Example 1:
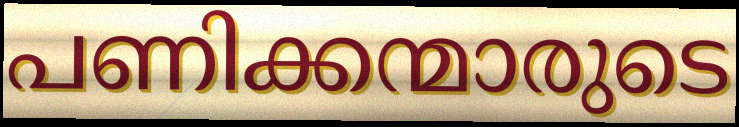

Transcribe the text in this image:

പണിക്കന്മാരുടെ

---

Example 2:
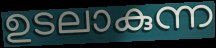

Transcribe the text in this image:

ഉടലാകുന്ന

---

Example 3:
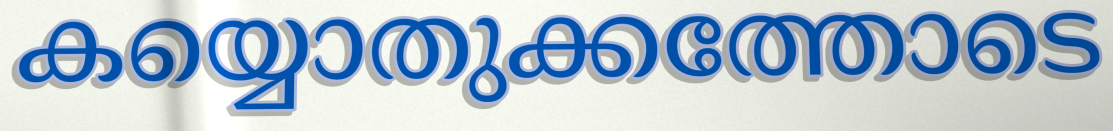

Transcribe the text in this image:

കയ്യൊതുക്കത്തോടെ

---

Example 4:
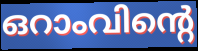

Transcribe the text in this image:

ഒറാംവിന്റെ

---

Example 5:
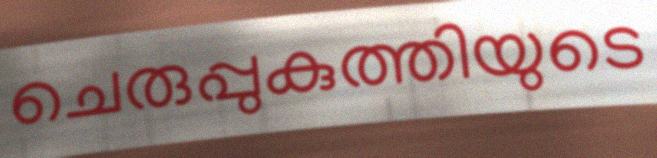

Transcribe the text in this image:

ചെരുപ്പുകുത്തിയുടെ